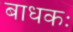
बाधकः